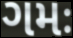
ગમઃ